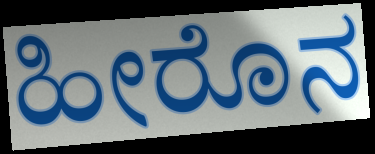
ಹೀರೊನ